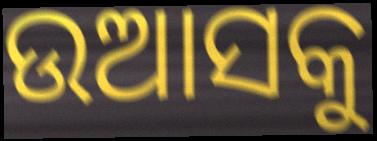
ଉଆସକୁ